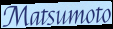
Matsumoto